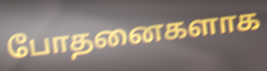
போதனைகளாக